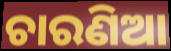
ଚାରଣିଆ